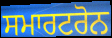
ਸਮਾਰਟਰੋਨ